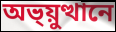
অভ্য়ুত্থানে